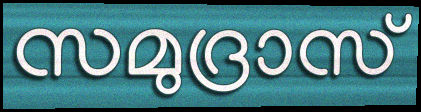
സമുദ്രാസ്